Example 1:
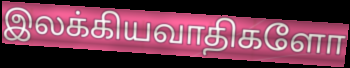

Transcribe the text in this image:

இலக்கியவாதிகளோ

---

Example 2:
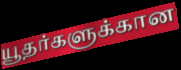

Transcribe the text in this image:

யூதர்களுக்கான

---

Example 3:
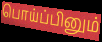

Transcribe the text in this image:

பொய்ப்பினும்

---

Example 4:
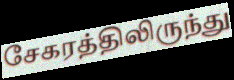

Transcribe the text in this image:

சேகரத்திலிருந்து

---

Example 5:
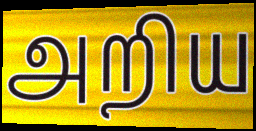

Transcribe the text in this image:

அறிய